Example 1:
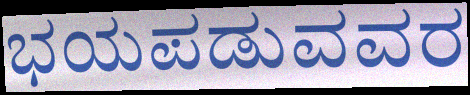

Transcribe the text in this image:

ಭಯಪಡುವವರ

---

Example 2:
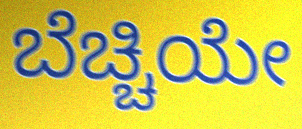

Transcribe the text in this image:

ಬೆಚ್ಚಿಯೇ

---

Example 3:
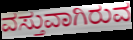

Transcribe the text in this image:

ವಸ್ತುವಾಗಿರುವ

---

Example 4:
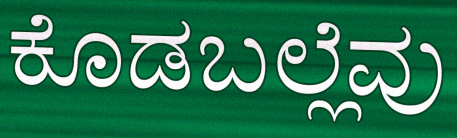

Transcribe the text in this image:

ಕೊಡಬಲ್ಲೆವು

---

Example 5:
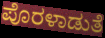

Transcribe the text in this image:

ಪೊರಳಾಡುತೆ